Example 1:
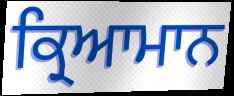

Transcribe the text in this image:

ਕ੍ਰਿਆਮਾਨ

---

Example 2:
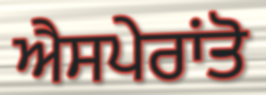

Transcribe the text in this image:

ਐਸਪੇਰਾਂਤੋ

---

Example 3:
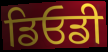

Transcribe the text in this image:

ਡਿਓਡੀ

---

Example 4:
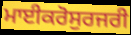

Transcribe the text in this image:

ਮਾਈਕਰੋਸੁਰਜਰੀ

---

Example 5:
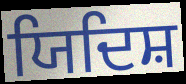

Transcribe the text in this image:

ਯਿਦਿਸ਼